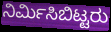
ನಿರ್ಮಿಸಿಬಿಟ್ಟರು